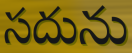
సదును